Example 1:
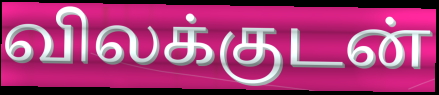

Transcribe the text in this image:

விலக்குடன்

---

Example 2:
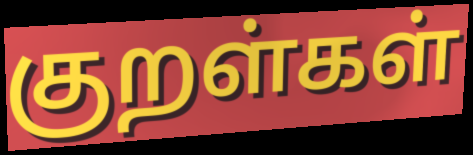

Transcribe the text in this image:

குறள்கள்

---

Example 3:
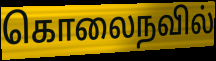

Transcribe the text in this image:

கொலைநவில்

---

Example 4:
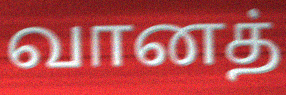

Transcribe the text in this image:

வானத்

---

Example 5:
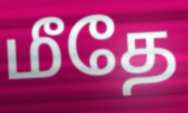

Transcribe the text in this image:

மீதே